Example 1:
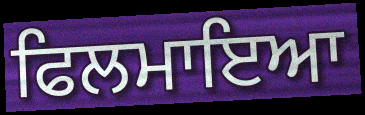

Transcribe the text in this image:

ਫਿਲਮਾਇਆ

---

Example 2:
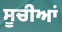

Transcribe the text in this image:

ਸੂਚੀਆਂ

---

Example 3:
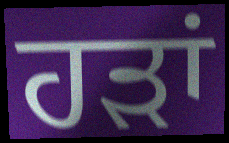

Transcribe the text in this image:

ਹੜਾਂ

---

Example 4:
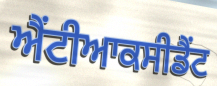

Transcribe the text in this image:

ਐਂਟੀਆਕਸੀਡੈਂਟ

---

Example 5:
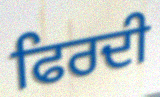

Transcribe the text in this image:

ਫਿਰਦੀ